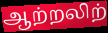
ஆற்றலிற்